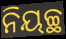
ନିୟଚ୍ଛ